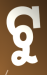
ଟୁ